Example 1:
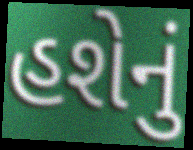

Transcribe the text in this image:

હશેનું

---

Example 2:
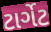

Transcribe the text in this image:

ટાર્ગેટ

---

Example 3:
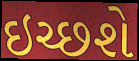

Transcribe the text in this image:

ઇચ્છશે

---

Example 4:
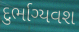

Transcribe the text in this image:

દુર્ભાગ્યવશ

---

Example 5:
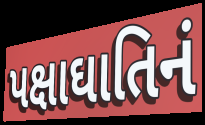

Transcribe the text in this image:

પક્ષાઘાતિનં